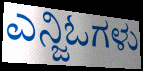
ಎನ್ಜಿಓಗಳು